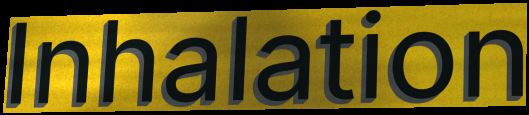
Inhalation